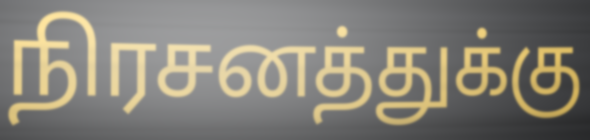
நிரசனத்துக்கு